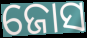
ଜୋସ